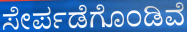
ಸೇರ್ಪಡೆಗೊಂಡಿವೆ